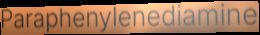
Paraphenylenediamine